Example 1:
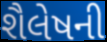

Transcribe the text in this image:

શૈલેષની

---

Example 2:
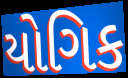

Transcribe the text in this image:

યોગિક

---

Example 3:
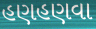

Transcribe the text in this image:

હણહણવા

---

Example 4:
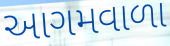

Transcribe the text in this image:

આગમવાળા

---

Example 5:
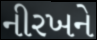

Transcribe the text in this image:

નીરખને